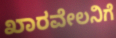
ಖಾರವೇಲನಿಗೆ